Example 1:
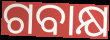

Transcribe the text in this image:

ଗବାକ୍ଷ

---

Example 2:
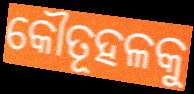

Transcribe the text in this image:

କୌତୂହଳକୁ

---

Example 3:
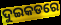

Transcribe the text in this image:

ଦୁଇକଡରେ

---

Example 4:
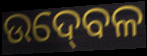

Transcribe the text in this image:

ଉଦ୍‍ବେଳ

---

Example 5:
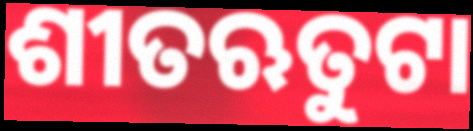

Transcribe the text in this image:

ଶୀତଋତୁଟା